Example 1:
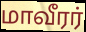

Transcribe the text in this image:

மாவீரர்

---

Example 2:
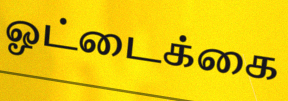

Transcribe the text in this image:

ஓட்டைக்கை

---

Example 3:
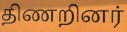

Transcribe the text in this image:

திணறினர்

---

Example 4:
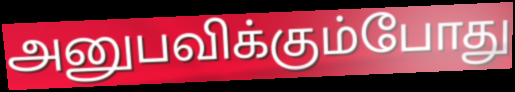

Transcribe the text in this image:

அனுபவிக்கும்போது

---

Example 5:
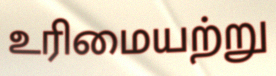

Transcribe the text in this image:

உரிமையற்று